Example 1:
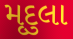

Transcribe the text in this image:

મૃદુલા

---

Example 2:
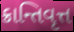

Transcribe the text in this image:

ક્રાન્તિવૃત્ત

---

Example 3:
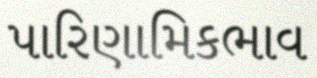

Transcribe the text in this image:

પારિણામિકભાવ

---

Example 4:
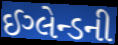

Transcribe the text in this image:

ઈગ્લેન્ડની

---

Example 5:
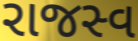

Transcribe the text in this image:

રાજસ્વ